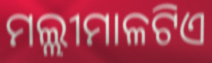
ମଲ୍ଲୀମାଳଟିଏ